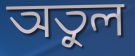
অতুল